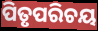
ପିତୃପରିଚୟ